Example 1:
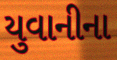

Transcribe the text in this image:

યુવાનીના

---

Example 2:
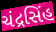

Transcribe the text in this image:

ચંદ્રસિંહ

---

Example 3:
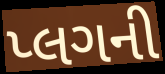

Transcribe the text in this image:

પ્લગની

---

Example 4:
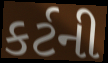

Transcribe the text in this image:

કર્ટની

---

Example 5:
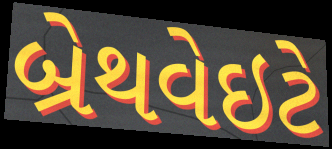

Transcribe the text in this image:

બ્રેથવેઇટે